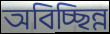
অবিচ্ছিন্ন